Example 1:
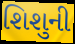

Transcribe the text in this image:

શિશુની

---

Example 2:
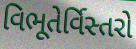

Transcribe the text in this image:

વિભૂતેર્વિસ્તરો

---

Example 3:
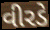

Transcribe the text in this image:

વીરડે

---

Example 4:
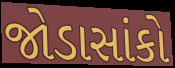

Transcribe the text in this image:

જોડાસાંકો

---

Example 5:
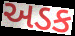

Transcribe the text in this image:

અડક